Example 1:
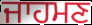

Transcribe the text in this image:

ਜਾਹਮਣ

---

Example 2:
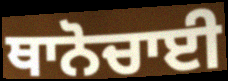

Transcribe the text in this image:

ਥਾਨੋਚਾਈ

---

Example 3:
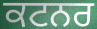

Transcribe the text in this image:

ਕਟਨਰ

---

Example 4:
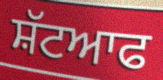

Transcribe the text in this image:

ਸ਼ੱਟਆਫ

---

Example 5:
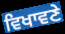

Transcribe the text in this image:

ਵਿਖਾਵਣੇ